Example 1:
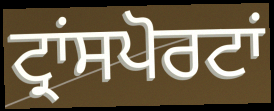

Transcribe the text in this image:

ਟ੍ਰਾਂਸਪੋਰਟਾਂ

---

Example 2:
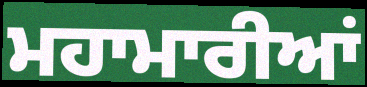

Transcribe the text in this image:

ਮਹਾਮਾਰੀਆਂ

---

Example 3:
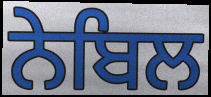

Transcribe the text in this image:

ਨੇਬਿਲ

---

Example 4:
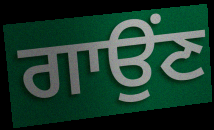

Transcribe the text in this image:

ਗਾਉਂਣ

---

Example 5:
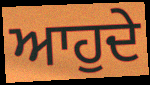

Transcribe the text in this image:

ਆਹੁਦੇ